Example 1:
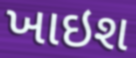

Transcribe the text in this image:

ખાઇશ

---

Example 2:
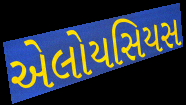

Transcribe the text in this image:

એલોયસિયસ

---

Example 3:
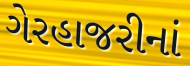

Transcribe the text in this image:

ગેરહાજરીનાં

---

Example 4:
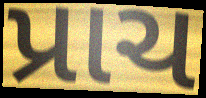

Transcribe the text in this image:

પ્રાચ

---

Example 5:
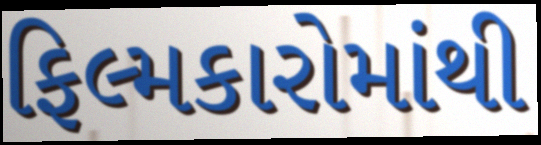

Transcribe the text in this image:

ફિલ્મકારોમાંથી